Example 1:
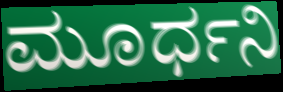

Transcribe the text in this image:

ಮೂರ್ಧನಿ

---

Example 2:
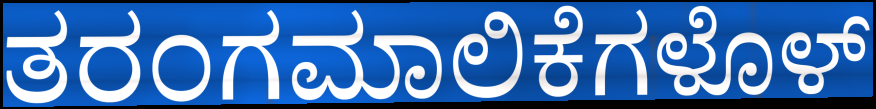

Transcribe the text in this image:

ತರಂಗಮಾಲಿಕೆಗಳೊಳ್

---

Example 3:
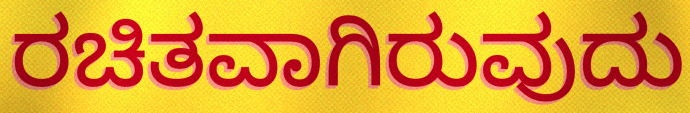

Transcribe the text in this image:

ರಚಿತವಾಗಿರುವುದು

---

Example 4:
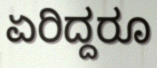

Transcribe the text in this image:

ಏರಿದ್ದರೂ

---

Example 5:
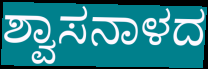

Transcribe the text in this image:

ಶ್ವಾಸನಾಳದ